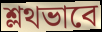
শ্লথভাবে